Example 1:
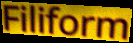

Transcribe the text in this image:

Filiform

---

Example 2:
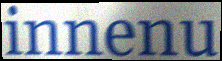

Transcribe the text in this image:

innenu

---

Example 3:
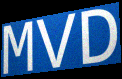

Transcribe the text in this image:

MVD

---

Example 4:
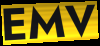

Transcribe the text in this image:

EMV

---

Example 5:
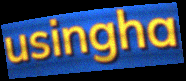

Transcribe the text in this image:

usingha